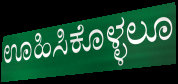
ಊಹಿಸಿಕೊಳ್ಳಲೂ